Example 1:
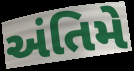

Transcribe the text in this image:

અંતિમે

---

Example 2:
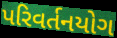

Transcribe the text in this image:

પરિવર્તનયોગ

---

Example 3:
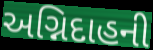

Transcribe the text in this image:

અગ્નિદાહની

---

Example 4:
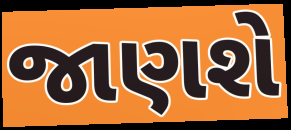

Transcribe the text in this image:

જાણશે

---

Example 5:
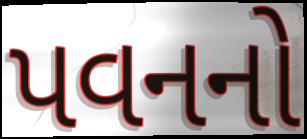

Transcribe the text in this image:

પવનનો